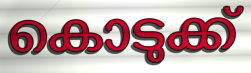
കൊടുക്ക്